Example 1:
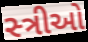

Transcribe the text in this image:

સ્‍ત્રીઓ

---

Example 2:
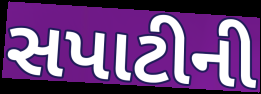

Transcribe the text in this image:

સપાટીની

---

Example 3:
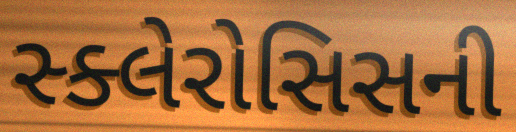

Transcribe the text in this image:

સ્ક્લેરોસિસની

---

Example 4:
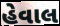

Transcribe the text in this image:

હેવાલ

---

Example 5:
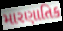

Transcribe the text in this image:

મારણાતિક